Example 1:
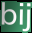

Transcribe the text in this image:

bij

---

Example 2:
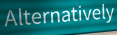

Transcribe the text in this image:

Alternatively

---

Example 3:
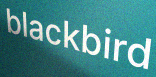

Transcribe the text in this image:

blackbird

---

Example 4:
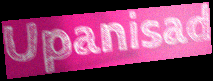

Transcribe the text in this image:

Upanisad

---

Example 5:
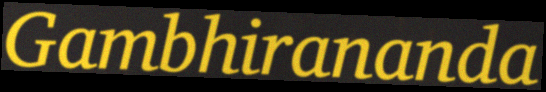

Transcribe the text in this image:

Gambhirananda